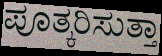
ಪೂತ್ಕರಿಸುತ್ತಾ